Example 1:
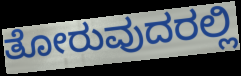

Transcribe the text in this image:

ತೋರುವುದರಲ್ಲಿ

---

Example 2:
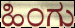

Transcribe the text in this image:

ಹಿಂಗು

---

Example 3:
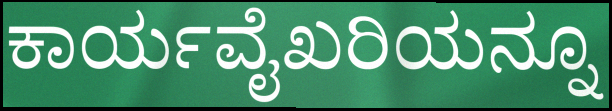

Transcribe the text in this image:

ಕಾರ್ಯವೈಖರಿಯನ್ನೂ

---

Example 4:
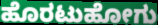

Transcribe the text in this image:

ಹೊರಟುಹೋಗು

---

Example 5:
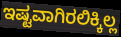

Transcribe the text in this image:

ಇಷ್ಟವಾಗಿರಲಿಕ್ಕಿಲ್ಲ